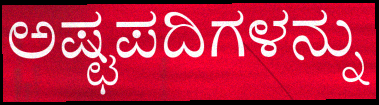
ಅಷ್ಟಪದಿಗಳನ್ನು